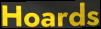
Hoards